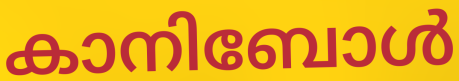
കാനിബോൾ